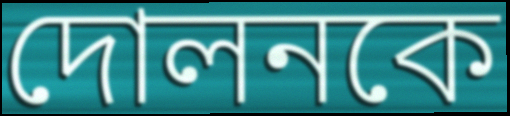
দোলনকে